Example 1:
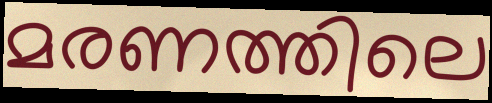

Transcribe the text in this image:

മരണത്തിലെ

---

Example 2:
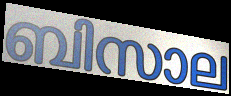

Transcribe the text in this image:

ബിസാല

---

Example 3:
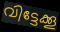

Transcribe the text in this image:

വിട്ടേക്കൂ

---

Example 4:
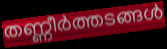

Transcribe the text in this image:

തണ്ണീർത്തടങ്ങൾ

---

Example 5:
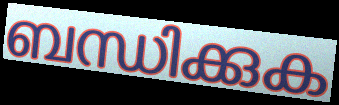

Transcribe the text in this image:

ബന്ധിക്കുക